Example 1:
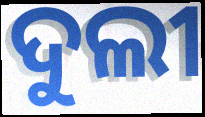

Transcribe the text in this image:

ଦୁଲୀ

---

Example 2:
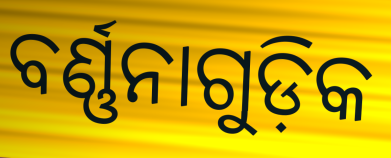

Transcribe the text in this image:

ବର୍ଣ୍ଣନାଗୁଡ଼ିକ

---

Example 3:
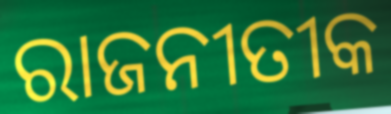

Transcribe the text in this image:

ରାଜନୀତୀକ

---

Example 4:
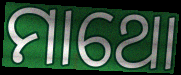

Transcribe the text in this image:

ମାଥୋ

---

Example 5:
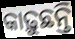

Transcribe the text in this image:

କାଢ଼ୁଛନ୍ତି